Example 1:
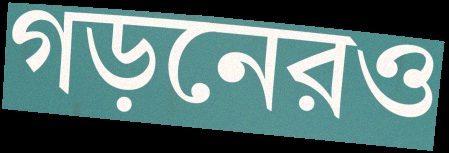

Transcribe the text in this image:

গড়নেরও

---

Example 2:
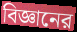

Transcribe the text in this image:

বিজ্ঞানের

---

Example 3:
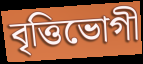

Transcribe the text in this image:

বৃত্তিভোগী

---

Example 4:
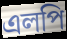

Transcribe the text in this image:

এলপি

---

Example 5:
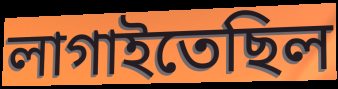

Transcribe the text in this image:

লাগাইতেছিল